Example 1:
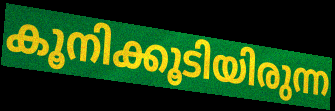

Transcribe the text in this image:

കൂനിക്കൂടിയിരുന്ന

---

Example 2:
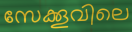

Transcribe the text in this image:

സേക്കൂവിലെ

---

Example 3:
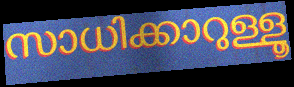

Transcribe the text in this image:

സാധിക്കാറുള്ളൂ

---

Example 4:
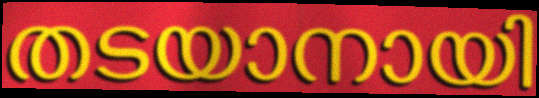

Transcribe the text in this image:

തടയാനായി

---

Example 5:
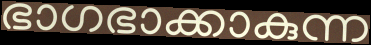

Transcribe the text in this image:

ഭാഗഭാക്കാകുന്ന